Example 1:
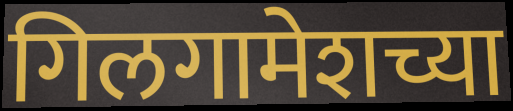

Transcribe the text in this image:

गिलगामेशच्या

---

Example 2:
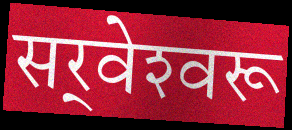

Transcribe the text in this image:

सर्वेश्वरू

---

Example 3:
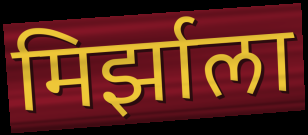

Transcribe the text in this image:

मिर्झाला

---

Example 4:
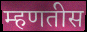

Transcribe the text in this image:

म्हणतीस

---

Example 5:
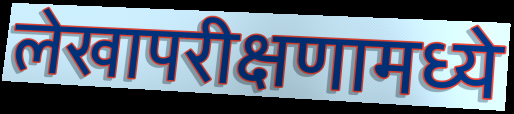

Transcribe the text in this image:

लेखापरीक्षणामध्ये